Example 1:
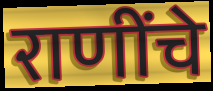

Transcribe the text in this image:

राणींचे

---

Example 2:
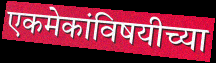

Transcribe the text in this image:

एकमेकांविषयीच्या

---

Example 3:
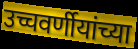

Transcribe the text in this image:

उच्चवर्णीयांच्या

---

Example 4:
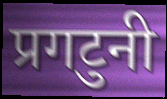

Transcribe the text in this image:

प्रगटुनी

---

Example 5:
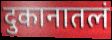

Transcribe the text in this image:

दुकानातलं